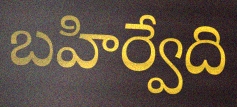
బహిర్వేది